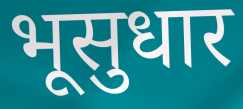
भूसुधार